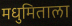
मधुमिताला